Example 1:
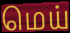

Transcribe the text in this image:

மெய்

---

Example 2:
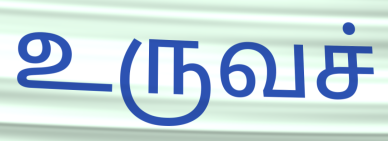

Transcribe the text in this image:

உருவச்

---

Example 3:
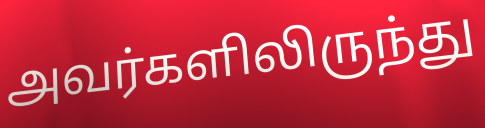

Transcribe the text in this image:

அவர்களிலிருந்து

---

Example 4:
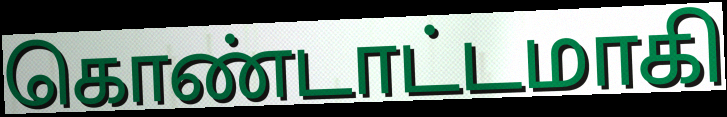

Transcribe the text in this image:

கொண்டாட்டமாகி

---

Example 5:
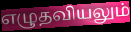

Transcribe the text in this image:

எழுதவியலும்